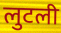
लुटली